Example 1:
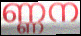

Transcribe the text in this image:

ണ്ണന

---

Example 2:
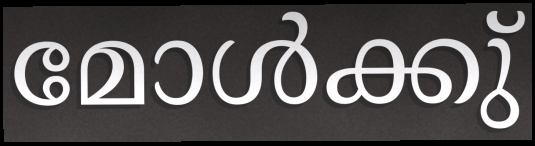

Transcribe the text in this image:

മോൾക്കു്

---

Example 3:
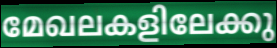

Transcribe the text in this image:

മേഖലകളിലേക്കു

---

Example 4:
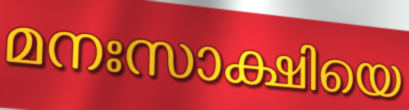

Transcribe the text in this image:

മനഃസാക്ഷിയെ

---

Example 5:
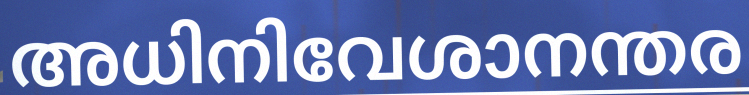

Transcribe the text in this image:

അധിനിവേശാനന്തര